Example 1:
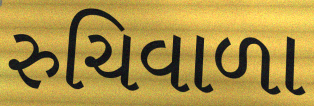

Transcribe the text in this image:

રુચિવાળા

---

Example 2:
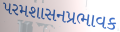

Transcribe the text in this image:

પરમશાસનપ્રભાવક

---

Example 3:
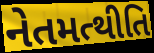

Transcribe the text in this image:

નેતમત્થીતિ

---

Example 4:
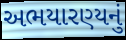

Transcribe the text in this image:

અભયારણ્યનું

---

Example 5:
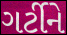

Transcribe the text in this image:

ગર્ટીને